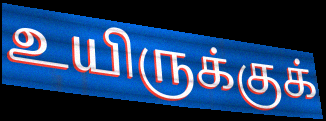
உயிருக்குக்